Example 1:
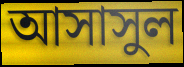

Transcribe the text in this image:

আসাসুল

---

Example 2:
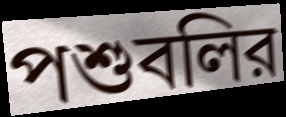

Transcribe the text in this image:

পশুবলির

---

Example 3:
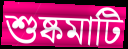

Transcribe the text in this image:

শুষ্কমাটি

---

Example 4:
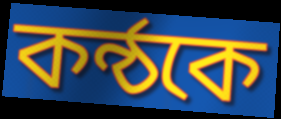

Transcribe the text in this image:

কন্ঠকে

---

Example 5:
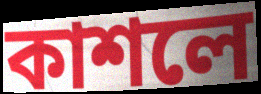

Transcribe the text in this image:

কাশলে